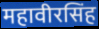
महावीरसिंह